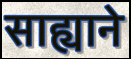
साह्याने